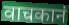
वाचकानं